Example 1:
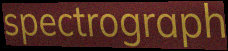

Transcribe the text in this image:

spectrograph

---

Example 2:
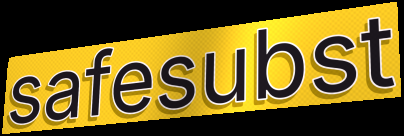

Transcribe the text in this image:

safesubst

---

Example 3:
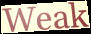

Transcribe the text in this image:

Weak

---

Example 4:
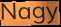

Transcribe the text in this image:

Nagy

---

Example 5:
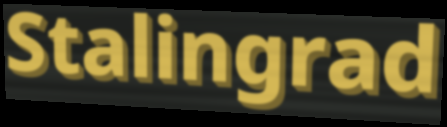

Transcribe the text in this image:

Stalingrad